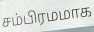
சம்பிரமமாக